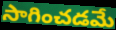
సాగించడమే